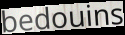
bedouins